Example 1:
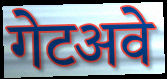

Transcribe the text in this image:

गेटअवे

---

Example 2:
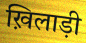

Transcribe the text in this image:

ख़िलाड़ी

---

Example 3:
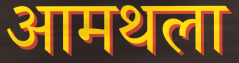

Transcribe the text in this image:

आमथला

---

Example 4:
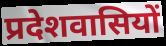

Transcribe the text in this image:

प्रदेशवासियों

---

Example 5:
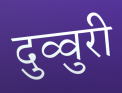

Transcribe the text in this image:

दुव्वुरी